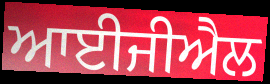
ਆਈਜੀਐਲ